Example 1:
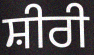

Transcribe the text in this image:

ਸ਼ੀਰੀ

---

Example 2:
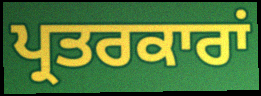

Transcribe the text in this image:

ਪ੍ਰਤਰਕਾਰਾਂ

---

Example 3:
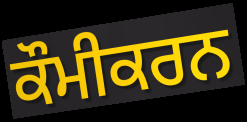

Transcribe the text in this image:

ਕੌਮੀਕਰਨ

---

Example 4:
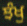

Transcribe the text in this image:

ਝੰਖੁ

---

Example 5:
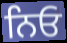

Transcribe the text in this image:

ਨਿਓ